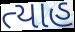
ત્યાહ